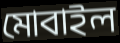
মোবাইল